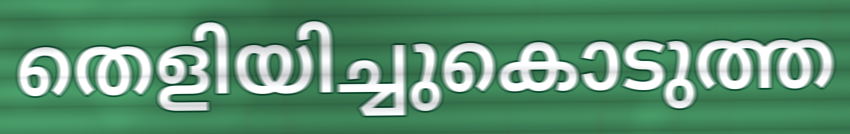
തെളിയിച്ചുകൊടുത്ത